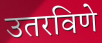
उतरविणे